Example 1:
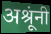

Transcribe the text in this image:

अश्रूंनी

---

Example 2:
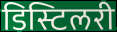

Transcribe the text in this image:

डिस्टिलरी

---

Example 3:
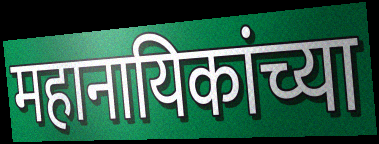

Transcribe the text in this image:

महानायिकांच्या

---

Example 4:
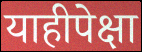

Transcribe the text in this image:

याहीपेक्षा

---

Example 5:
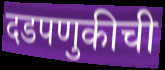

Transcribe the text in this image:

दडपणुकीची